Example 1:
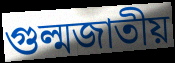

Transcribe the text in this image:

গুল্মজাতীয়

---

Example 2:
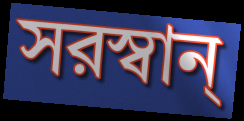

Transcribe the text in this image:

সরস্বান্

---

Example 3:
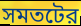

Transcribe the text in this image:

সমতটের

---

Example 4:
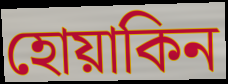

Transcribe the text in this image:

হোয়াকিন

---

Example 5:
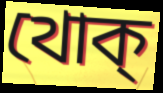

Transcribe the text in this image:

থোক্